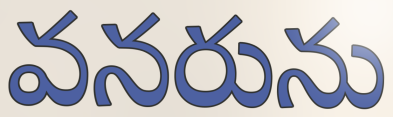
వనరును